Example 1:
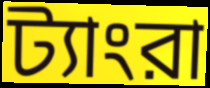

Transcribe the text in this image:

ট্যাংরা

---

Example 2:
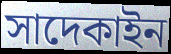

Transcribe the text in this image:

সাদেকাইন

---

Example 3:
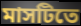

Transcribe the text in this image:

মাসটিতে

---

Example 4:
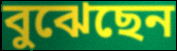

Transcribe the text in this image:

বুঝেছেন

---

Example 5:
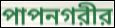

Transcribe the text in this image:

পাপনগরীর